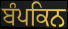
ਬੰਪਕਿਨ